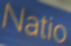
Natio